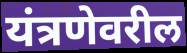
यंत्रणेवरील